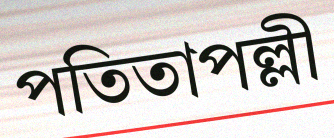
পতিতাপল্লী